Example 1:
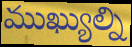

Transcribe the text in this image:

ముఖ్యుల్ని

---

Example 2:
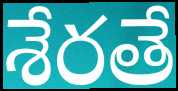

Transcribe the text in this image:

శేరతే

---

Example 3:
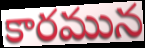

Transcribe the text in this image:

కారమున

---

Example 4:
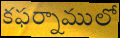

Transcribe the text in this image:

కఫర్నాములో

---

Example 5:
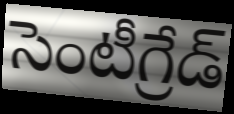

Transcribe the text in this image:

సెంటీగ్రేడ్